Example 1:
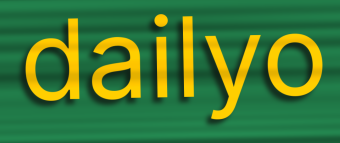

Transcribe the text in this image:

dailyo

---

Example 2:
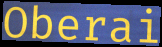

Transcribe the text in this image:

Oberai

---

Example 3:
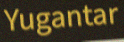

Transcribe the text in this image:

Yugantar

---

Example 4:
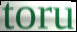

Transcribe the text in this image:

toru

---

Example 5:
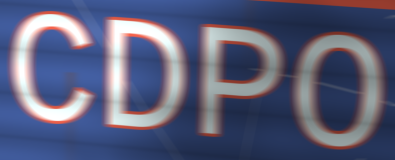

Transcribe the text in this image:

CDPO